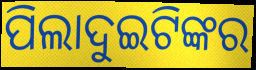
ପିଲାଦୁଇଟିଙ୍କର